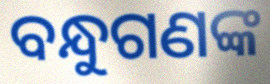
ବନ୍ଧୁଗଣଙ୍କ